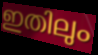
ഇതിലും